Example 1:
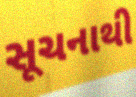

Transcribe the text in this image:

સૂચનાથી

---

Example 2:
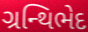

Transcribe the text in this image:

ગ્રન્થિભેદ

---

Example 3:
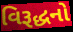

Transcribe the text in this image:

વિરૂદ્ધનો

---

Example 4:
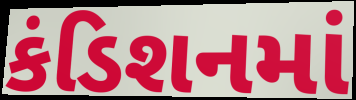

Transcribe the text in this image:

કંડિશનમાં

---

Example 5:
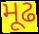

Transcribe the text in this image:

મૂઢ